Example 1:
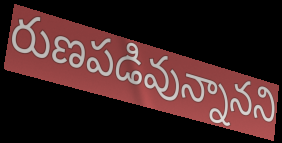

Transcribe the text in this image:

రుణపడివున్నానని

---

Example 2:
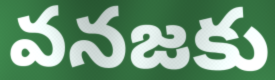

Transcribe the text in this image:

వనజకు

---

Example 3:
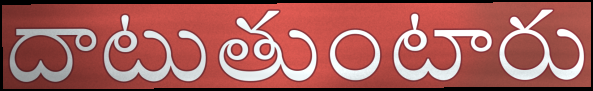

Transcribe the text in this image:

దాటుతుంటారు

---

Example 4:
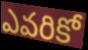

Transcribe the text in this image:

ఎవరికో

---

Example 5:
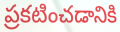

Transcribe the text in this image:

ప్రకటించడానికి